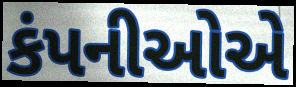
કંપનીઓએ